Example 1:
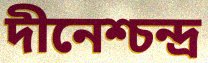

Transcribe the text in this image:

দীনেশ্চন্দ্র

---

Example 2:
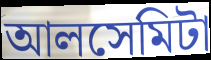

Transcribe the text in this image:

আলসেমিটা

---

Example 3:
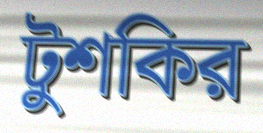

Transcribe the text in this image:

টুশকির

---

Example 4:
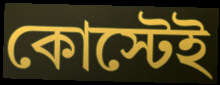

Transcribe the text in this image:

কোস্টেই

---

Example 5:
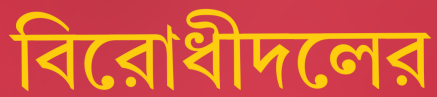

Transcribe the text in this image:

বিরোধীদলের